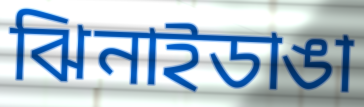
ঝিনাইডাঙা